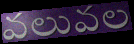
వలువల